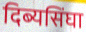
दिब्यसिंघा